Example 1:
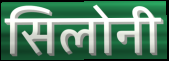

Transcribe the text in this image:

सिलोनी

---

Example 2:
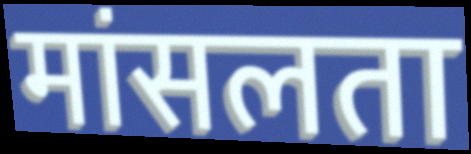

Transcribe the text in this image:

मांसलता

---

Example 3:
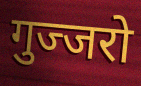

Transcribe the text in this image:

गुज्जरो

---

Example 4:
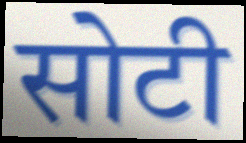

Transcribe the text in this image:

सोटी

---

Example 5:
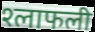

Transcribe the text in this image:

श्लाफली